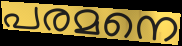
പരമനെ